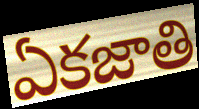
ఏకజాతి